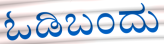
ಓಡಿಬಂದು